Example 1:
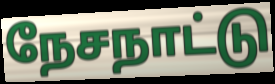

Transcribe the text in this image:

நேசநாட்டு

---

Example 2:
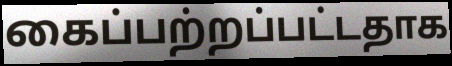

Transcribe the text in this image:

கைப்பற்றப்பட்டதாக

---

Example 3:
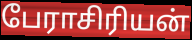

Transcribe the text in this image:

பேராசிரியன்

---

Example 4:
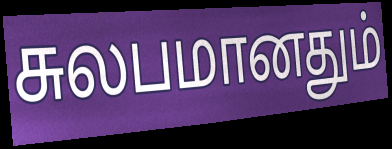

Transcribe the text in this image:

சுலபமானதும்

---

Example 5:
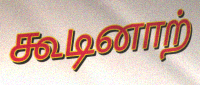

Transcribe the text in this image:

கூடினாற்